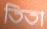
তিতা